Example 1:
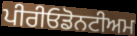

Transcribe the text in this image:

ਪੀਰੀਓਡੋਨਟੀਅਮ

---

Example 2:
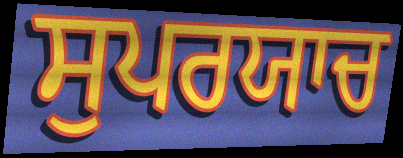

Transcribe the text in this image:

ਸੁਪਰਯਾਚ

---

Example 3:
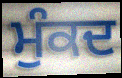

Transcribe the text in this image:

ਮੁੰਕਦ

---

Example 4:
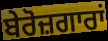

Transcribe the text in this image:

ਬੇਰੋਜ਼ਗਾਰਾਂ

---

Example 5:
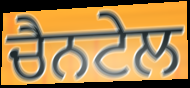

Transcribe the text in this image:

ਚੈਨਟੇਲ